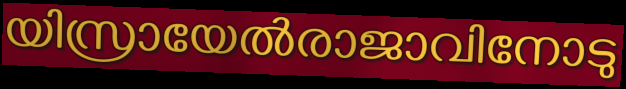
യിസ്രായേൽരാജാവിനോടു